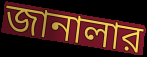
জানালার